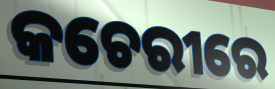
କଚେରୀରେ